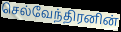
செல்வேந்திரனின்